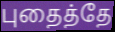
புதைத்தே